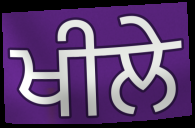
ਖੀਲੇ